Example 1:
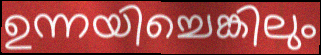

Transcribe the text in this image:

ഉന്നയിച്ചെങ്കിലും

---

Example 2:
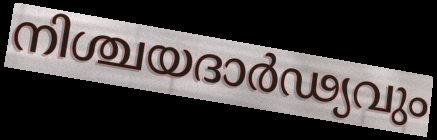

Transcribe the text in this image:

നിശ്ചയദാർഢ്യവും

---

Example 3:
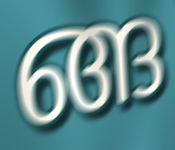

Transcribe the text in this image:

ങ്ങ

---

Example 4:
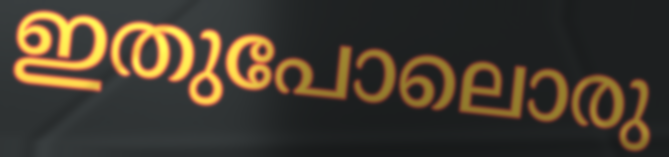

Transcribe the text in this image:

ഇതുപോലൊരു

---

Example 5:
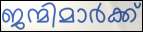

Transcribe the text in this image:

ജന്മിമാർക്ക്